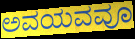
ಅವಯವವೂ